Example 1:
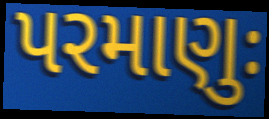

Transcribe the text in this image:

પરમાણુઃ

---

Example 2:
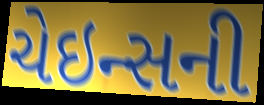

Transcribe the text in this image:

ચેઇન્સની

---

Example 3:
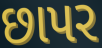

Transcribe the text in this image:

છાપર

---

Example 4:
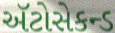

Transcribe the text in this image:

ઍટોસેકન્ડ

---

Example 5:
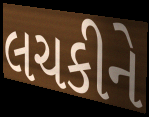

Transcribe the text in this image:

લચકીને